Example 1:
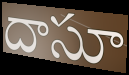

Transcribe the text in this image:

దాసూ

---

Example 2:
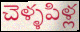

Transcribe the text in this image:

చెళ్ళపిళ్ల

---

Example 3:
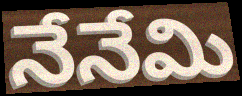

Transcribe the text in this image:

నేనేమి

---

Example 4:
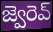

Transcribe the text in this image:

జ్వెరెవ్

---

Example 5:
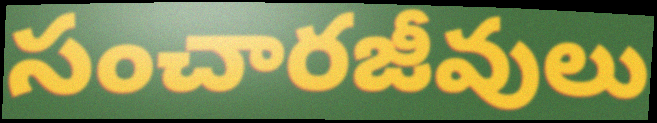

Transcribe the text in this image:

సంచారజీవులు